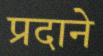
प्रदाने